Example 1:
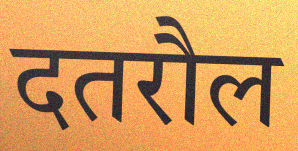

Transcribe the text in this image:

दतरौल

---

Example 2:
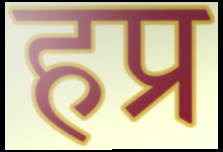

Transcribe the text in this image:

हप्र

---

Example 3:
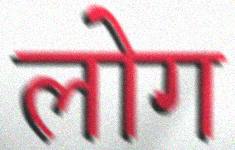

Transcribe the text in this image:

लोग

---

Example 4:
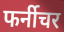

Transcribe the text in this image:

फर्नीचर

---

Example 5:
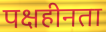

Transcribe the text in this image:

पक्षहीनता